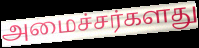
அமைச்சர்களது